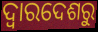
ଦ୍ଵାରଦେଶରୁ